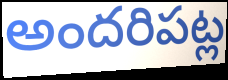
అందరిపట్ల